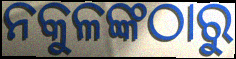
ନକୁଳଙ୍କଠାରୁ